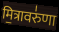
मि॒त्रावरु॑णा